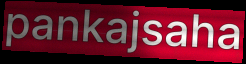
pankajsaha